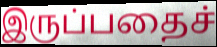
இருப்பதைச்